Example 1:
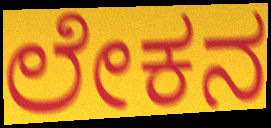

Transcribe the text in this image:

ಲೇಕನ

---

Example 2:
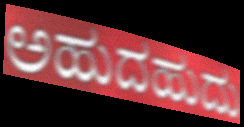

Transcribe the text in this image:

ಅಹುದಹುದು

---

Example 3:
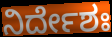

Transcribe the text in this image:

ನಿರ್ದೇಶಃ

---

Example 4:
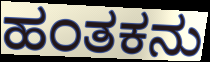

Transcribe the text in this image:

ಹಂತಕನು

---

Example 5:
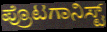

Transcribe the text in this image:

ಪ್ರೊಟಗಾನಿಸ್ಟ್